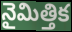
నైమిత్తిక